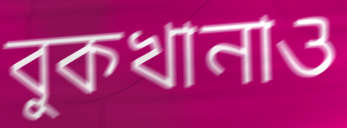
বুকখানাও